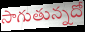
సాగుతున్నదో